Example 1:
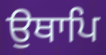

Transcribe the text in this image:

ਉਥਾਪਿ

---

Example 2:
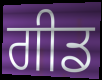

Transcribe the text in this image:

ਗੀਡ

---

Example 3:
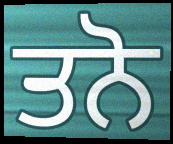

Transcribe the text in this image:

ਤਨੋ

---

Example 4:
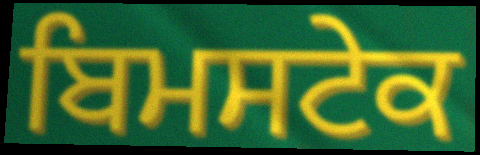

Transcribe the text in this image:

ਬਿਮਸਟੇਕ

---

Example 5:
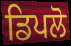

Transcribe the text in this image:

ਡਿਪਲੋ